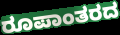
ರೂಪಾಂತರದ